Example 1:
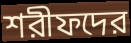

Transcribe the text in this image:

শরীফদের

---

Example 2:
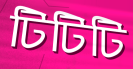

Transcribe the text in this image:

টিটিটি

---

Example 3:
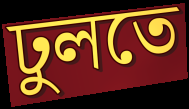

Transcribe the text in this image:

ঢুলতে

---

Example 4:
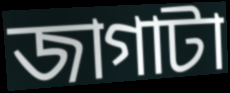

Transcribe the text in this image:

জাগাটা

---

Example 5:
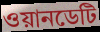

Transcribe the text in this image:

ওয়ানডেটি